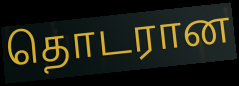
தொடரான